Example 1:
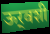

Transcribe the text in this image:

ऊर्वशी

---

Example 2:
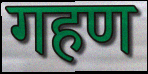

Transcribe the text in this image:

गहण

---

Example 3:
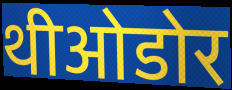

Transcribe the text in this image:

थीओडोर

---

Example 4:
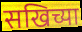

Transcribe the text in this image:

सखिच्या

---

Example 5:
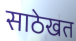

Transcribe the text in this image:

साठेखत